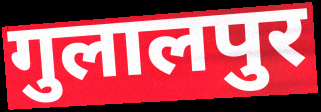
गुलालपुर